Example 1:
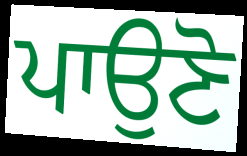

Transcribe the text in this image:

ਪਾਉਣੋ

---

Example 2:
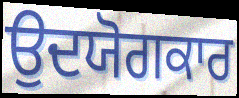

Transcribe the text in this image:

ਉਦਯੋਗਕਾਰ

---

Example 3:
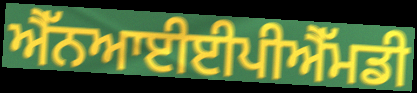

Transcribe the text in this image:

ਐੱਨਆਈਈਪੀਐੱਮਡੀ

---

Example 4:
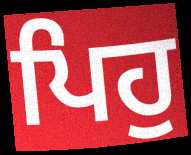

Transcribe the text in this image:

ਪਿਹੁ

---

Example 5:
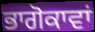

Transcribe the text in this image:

ਭਾਗੋਕਾਵਾਂ